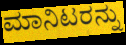
ಮಾನಿಟರನ್ನು